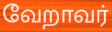
வேறாவர்